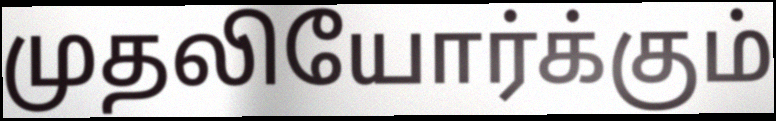
முதலியோர்க்கும்